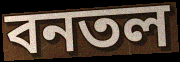
বনতল